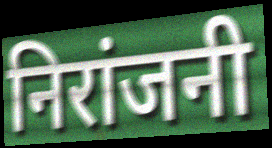
निरांजनी